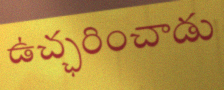
ఉచ్ఛరించాడు